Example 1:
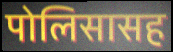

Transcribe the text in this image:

पोलिसासह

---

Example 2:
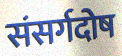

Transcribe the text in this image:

संसर्गदोष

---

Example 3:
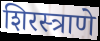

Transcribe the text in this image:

शिरस्त्राणे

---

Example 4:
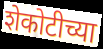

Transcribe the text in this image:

शेकोटीच्या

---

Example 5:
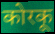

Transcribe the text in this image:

कोरकू